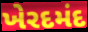
ખેરદમંદ